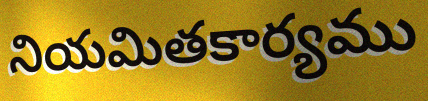
నియమితకార్యము